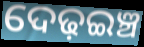
ଦେଢ଼ଇଞ୍ଚ